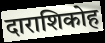
दाराशिकोह